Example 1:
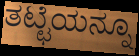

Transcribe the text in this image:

ತಟ್ಟೆಯನ್ನೂ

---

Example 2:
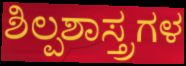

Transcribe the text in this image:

ಶಿಲ್ಪಶಾಸ್ತ್ರಗಳ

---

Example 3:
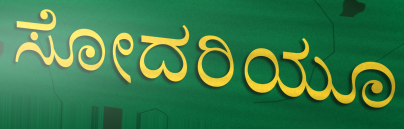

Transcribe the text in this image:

ಸೋದರಿಯೂ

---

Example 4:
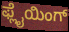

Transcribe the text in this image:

ಫ್ಲೈಯಿಂಗ್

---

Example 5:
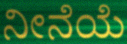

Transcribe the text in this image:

ನೀನೆಯೆ